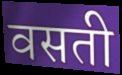
वसती